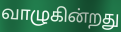
வாழுகின்றது